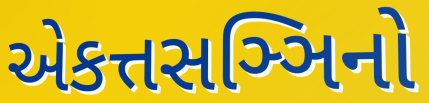
એકત્તસઞ્ઞિનો